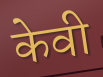
केवी